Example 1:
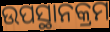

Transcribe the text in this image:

ଉପସ୍ଥାନକ୍ରମ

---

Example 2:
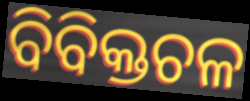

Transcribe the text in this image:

ବିବିକ୍ତଚଳ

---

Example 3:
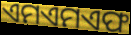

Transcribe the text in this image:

ଏମଏମଏଫ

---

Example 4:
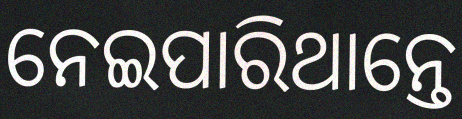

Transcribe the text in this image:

ନେଇପାରିଥାନ୍ତେ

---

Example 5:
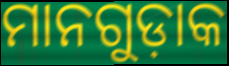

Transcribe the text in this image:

ମାନଗୁଡ଼ାକ